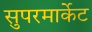
सुपरमार्केट